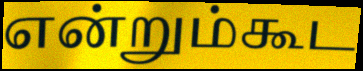
என்றும்கூட